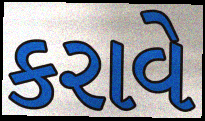
કરાવે